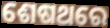
ଶେଷଥରେ